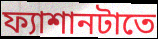
ফ্যাশানটাতে